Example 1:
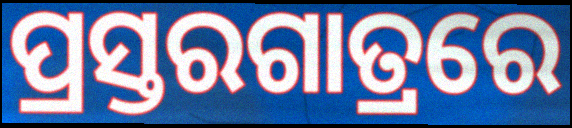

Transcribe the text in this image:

ପ୍ରସ୍ତରଗାତ୍ରରେ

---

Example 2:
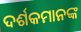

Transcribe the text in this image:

ଦର୍ଶକମାନଙ୍କ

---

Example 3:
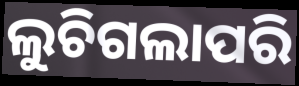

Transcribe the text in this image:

ଲୁଚିଗଲାପରି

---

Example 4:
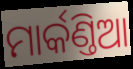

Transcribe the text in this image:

ମାର୍କଣ୍ତିଆ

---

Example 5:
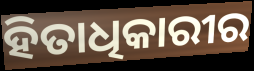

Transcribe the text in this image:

ହିତାଧିକାରୀର